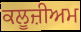
ਕਲੂਜ਼ੀਅਮ